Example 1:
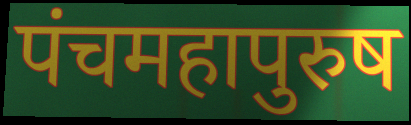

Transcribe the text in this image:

पंचमहापुरुष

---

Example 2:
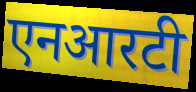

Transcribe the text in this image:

एनआरटी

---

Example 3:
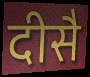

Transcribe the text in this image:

दीसै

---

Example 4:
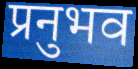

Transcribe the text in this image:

प्रनुभव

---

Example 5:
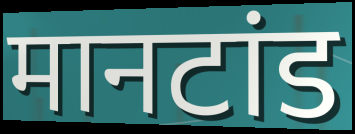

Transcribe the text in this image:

मानटांड